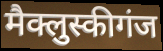
मैक्लुस्कीगंज